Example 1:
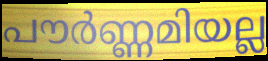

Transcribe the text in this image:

പൗർണ്ണമിയല്ല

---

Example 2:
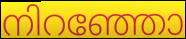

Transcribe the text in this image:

നിറഞ്ഞോ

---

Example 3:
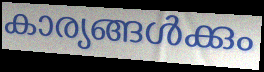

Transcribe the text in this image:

കാര്യങ്ങൾക്കും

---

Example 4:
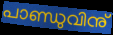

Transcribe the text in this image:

പാണ്ഡുവിനു്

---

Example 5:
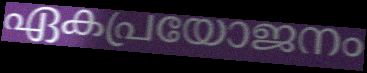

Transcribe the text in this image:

ഏകപ്രയോജനം